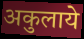
अकुलाये